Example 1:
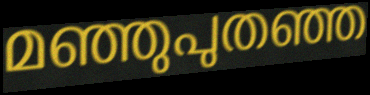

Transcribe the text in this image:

മഞ്ഞുപുതഞ്ഞ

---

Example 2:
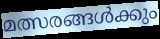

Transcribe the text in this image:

മത്സരങ്ങൾക്കും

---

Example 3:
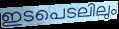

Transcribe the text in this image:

ഇടപെടലിലും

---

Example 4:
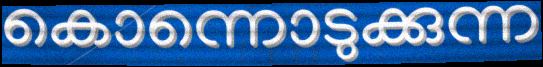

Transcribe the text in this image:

കൊന്നൊടുക്കുന്ന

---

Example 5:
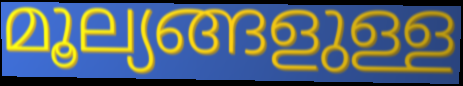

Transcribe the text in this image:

മൂല്യങ്ങളുള്ള